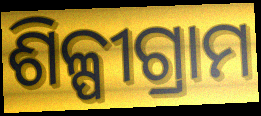
ଶିଳ୍ପୀଗ୍ରାମ